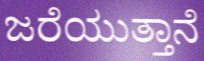
ಜರೆಯುತ್ತಾನೆ